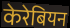
केरेबियन